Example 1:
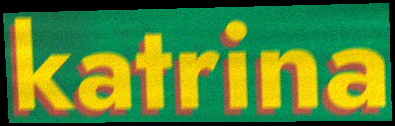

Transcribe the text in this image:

katrina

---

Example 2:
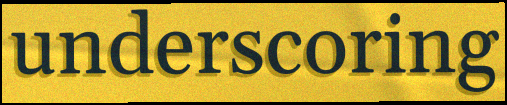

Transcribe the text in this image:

underscoring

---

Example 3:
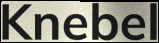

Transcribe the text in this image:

Knebel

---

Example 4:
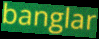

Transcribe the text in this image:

banglar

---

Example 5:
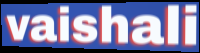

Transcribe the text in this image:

vaishali